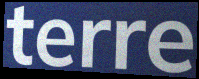
terre